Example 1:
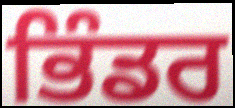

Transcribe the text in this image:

ਭਿੰਡਰ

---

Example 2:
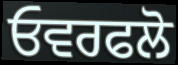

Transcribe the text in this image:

ਓਵਰਫਲੋ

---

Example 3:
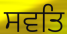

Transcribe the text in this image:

ਸਵਤਿ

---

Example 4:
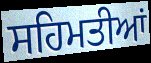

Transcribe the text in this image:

ਸਹਿਮਤੀਆਂ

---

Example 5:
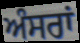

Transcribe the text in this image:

ਅੰਸਰਾਂ